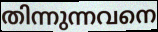
തിന്നുന്നവനെ